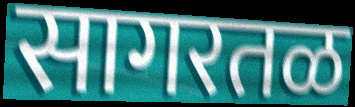
सागरतळ